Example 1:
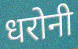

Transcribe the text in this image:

धरोनी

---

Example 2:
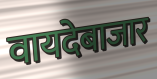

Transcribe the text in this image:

वायदेबाजार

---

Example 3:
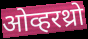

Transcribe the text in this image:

ओव्हरथ्रो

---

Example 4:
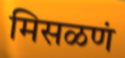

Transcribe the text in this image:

मिसळणं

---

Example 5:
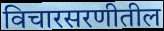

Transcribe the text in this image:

विचारसरणीतील